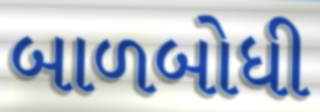
બાળબોધી